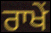
ਰਾਖੇਂ